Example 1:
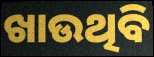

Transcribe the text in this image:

ଖାଉଥିବି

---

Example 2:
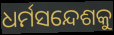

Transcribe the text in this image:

ଧର୍ମସନ୍ଦେଶକୁ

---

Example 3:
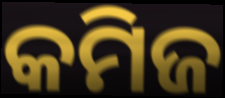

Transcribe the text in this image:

କମିଜ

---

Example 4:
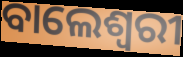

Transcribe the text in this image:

ବାଲେଶ୍ୱରୀ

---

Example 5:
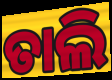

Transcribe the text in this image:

ତାଲି